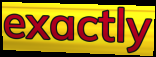
exactly